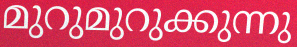
മുറുമുറുക്കുന്നു